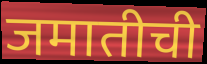
जमातीची